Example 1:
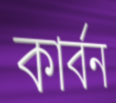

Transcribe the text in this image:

কার্বন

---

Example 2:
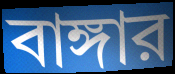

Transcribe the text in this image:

বাঙ্গার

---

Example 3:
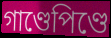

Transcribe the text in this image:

গাণ্ডেপিণ্ডে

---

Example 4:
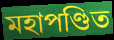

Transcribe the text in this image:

মহাপণ্ডিত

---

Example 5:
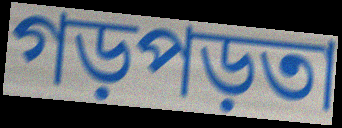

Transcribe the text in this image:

গড়পড়তা